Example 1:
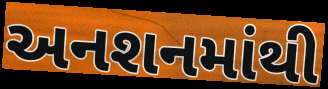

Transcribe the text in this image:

અનશનમાંથી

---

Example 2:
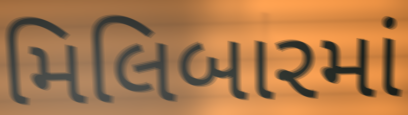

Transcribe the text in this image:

મિલિબારમાં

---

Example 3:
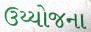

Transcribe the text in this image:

ઉય્યોજના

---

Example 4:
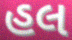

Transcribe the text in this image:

હલ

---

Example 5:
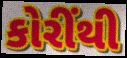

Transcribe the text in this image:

કોરીંથી